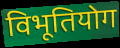
विभूतियोग